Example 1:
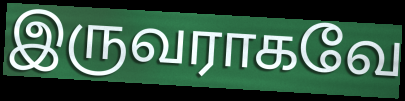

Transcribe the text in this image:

இருவராகவே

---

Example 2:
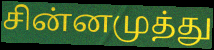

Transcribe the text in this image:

சின்னமுத்து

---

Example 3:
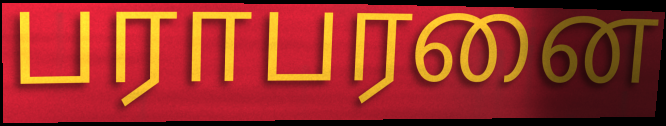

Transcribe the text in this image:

பராபரனை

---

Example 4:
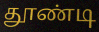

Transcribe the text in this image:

தூண்டி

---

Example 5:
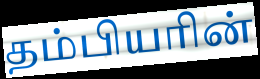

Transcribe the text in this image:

தம்பியரின்